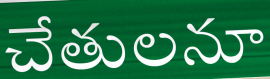
చేతులనూ